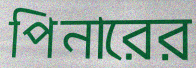
পিনারের